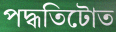
পদ্ধতিটোত